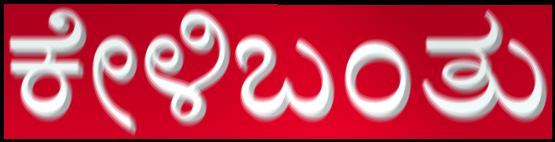
ಕೇಳಿಬಂತು